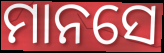
ମାନସେ